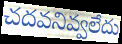
చదవనివ్వలేదు